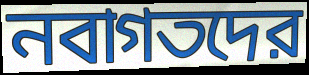
নবাগতদের